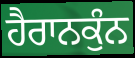
ਹੈਰਾਨਕੁੰਨ